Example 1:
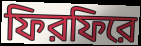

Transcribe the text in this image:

ফিরফিরে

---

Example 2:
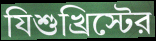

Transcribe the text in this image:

যিশুখ্রিস্টের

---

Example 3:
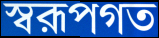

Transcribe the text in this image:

স্বরূপগত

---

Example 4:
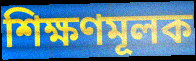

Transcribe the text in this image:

শিক্ষণমূলক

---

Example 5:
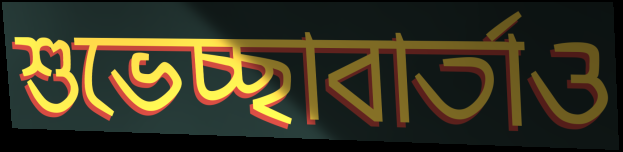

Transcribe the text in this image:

শুভেচ্ছাবার্তাও